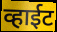
व्हाईट